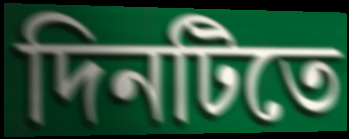
দিনটিতে